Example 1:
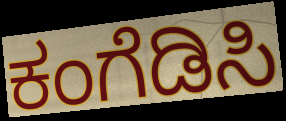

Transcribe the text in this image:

ಕಂಗೆಡಿಸಿ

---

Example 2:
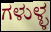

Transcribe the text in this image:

ಗಳುಳ್ಳ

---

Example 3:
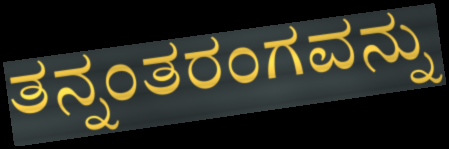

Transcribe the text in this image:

ತನ್ನಂತರಂಗವನ್ನು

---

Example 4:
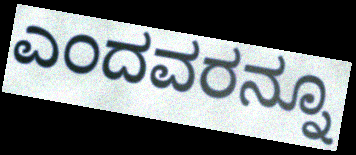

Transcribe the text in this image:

ಎಂದವರನ್ನೂ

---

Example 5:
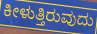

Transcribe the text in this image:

ಕೀಳುತ್ತಿರುವುದು